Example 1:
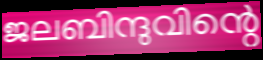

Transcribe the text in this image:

ജലബിന്ദുവിന്റെ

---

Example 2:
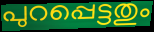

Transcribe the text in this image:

പുറപ്പെട്ടതും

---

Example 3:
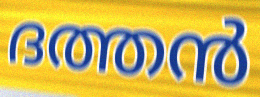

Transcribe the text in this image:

ദത്തൻ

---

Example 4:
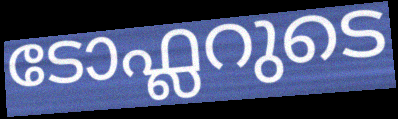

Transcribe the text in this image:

ടോഫ്ലറുടെ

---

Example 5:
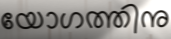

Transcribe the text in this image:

യോഗത്തിനു